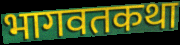
भागवतकथा